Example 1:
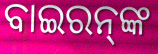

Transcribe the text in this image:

ବାଇରନ୍‌ଙ୍କ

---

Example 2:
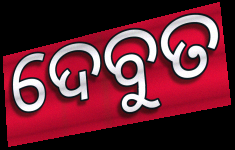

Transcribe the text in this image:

ଦେବୁତ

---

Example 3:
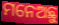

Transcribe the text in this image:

ମନେଅଛୁ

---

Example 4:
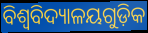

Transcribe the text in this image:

ବିଶ୍ଵବିଦ୍ୟାଳୟଗୁଡ଼ିକ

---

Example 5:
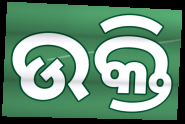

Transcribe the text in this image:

ଉକ୍ତି